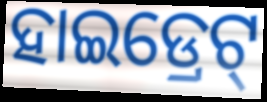
ହାଇଡ୍ରେଟ୍